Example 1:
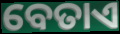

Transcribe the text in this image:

ବେତାଏ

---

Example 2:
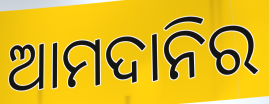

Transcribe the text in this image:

ଆମଦାନିର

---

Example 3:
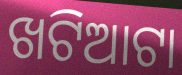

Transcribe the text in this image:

ଖଟିଆଟା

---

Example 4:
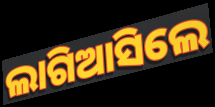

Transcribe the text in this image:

ଲାଗିଆସିଲେ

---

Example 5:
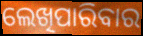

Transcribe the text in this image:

ଲେଖିପାରିବାର